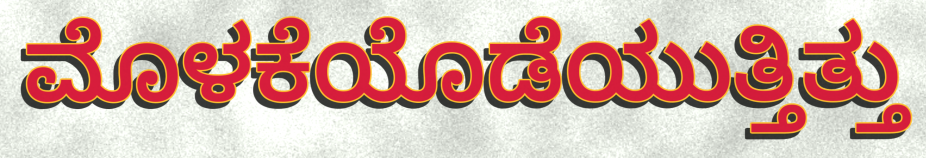
ಮೊಳಕೆಯೊಡೆಯುತ್ತಿತ್ತು